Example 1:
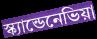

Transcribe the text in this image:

স্ক্যান্ডেনেভিয়া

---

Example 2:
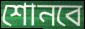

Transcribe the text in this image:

শোনবে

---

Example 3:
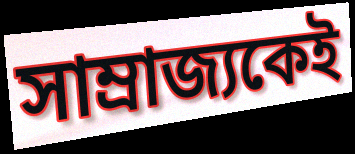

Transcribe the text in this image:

সাম্রাজ্যকেই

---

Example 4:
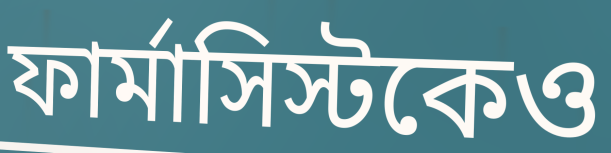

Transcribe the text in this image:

ফার্মাসিস্টকেও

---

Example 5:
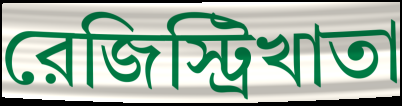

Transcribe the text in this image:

রেজিস্ট্রিখাতা